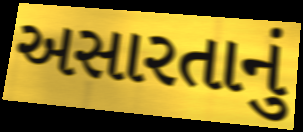
અસારતાનું